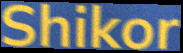
Shikor